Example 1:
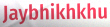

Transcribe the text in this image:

Jaybhikhkhu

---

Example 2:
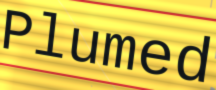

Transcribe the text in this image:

Plumed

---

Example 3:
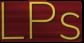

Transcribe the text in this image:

LPs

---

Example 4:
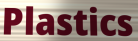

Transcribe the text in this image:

Plastics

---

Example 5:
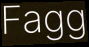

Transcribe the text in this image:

Fagg